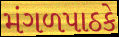
મંગળપાઠકે